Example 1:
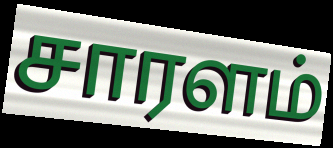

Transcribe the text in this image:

சாரளம்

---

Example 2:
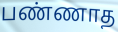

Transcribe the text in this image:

பண்ணாத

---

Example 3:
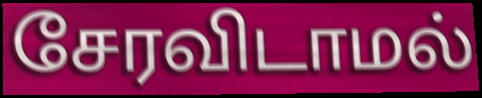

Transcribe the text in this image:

சேரவிடாமல்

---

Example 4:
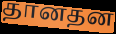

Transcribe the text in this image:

தானதன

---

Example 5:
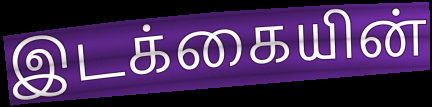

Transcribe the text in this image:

இடக்கையின்